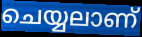
ചെയ്യലാണ്